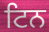
ਟਿਨ